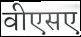
वीएसए